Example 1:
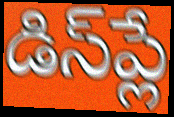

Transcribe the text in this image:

డిస్‌ప్లే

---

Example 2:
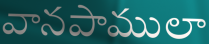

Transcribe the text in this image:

వానపాములా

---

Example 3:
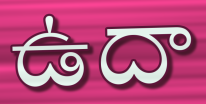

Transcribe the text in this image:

ఉదా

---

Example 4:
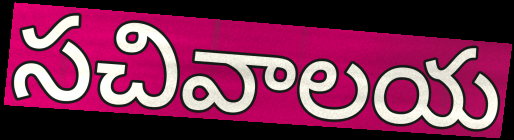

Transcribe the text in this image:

సచివాలయ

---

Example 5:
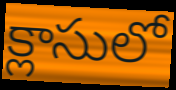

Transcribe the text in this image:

క్లాసులో